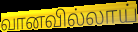
வானவில்லாய்